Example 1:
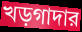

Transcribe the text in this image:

খড়গাদার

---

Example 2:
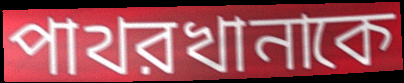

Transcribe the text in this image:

পাথরখানাকে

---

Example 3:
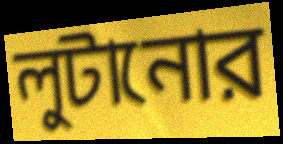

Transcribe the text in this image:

লুটানোর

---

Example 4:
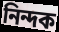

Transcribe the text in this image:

নিন্দক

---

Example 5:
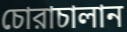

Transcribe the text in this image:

চোরাচালান